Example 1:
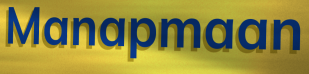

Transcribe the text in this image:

Manapmaan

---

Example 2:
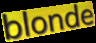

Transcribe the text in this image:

blonde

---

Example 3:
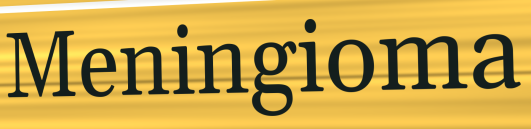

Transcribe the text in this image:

Meningioma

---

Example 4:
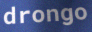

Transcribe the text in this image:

drongo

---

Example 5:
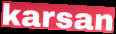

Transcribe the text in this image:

karsan